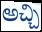
అచ్చి